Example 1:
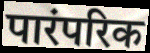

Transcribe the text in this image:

पारंपरिक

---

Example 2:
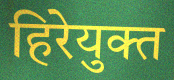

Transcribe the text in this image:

हिरेयुक्त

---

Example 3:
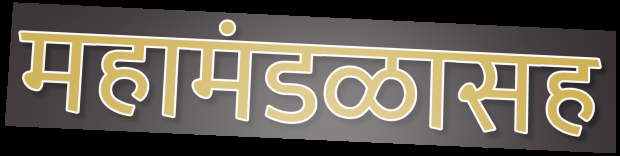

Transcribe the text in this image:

महामंडळासह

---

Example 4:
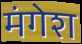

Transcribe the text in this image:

मंगेश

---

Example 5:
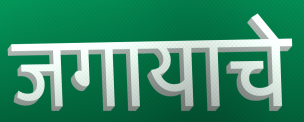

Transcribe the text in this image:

जगायाचे